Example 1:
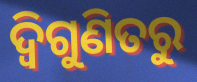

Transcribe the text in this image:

ଦ୍ୱିଗୁଣିତରୁ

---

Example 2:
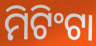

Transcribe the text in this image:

ମିଟିଂଟା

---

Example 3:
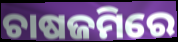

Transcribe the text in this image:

ଚାଷଜମିରେ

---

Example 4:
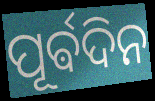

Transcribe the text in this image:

ପୂର୍ଵଦିନ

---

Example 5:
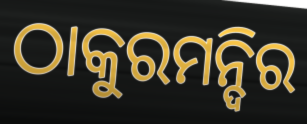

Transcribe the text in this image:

ଠାକୁରମନ୍ଦିର